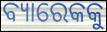
ବ୍ୟାରେକକୁ